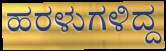
ಹರಳುಗಳಿದ್ದ